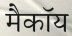
मैकॉय